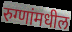
रुग्णांमधील